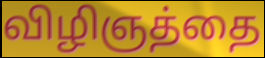
விழிஞத்தை